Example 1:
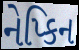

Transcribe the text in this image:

નેપ્કિન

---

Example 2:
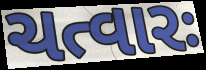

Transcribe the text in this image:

ચત્વારઃ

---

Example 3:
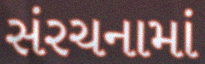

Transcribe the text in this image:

સંરચનામાં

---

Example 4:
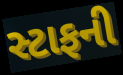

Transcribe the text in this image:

સ્ટાફની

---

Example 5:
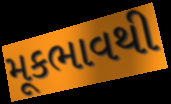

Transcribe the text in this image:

મૂકભાવથી